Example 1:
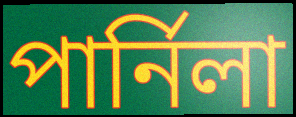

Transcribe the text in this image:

পার্নিলা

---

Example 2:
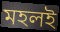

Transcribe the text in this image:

মহলই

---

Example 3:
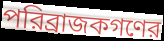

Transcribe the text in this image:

পরিব্রাজকগণের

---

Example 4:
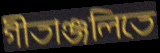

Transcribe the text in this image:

গীতাঞ্জলিতে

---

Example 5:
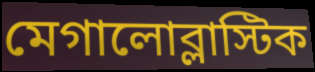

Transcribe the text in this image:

মেগালোব্লাস্টিক